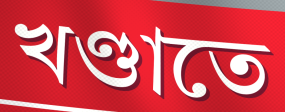
খণ্ডাতে